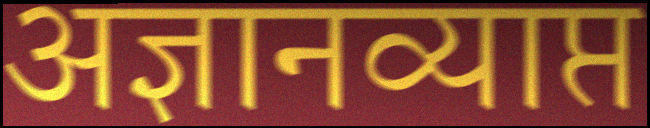
अज्ञानव्याप्त